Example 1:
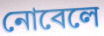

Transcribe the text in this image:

নোবেলে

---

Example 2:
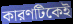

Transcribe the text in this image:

কারণটিকেই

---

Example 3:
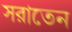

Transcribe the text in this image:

সরাতেন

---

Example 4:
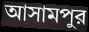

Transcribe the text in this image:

আসামপুর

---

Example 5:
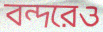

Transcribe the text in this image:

বন্দরেও